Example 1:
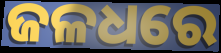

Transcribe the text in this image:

ଜଳଧରେ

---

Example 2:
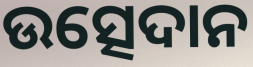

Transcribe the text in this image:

ଉତ୍ସେଦାନ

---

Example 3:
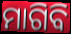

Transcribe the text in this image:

ମାଗିବି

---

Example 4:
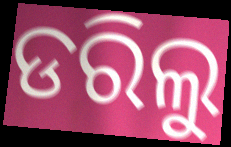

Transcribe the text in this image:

ଡରିଲୁ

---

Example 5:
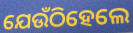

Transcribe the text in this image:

ଯେଉଁଠିହେଲେ